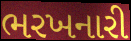
ભરખનારી